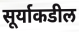
सूर्याकडील